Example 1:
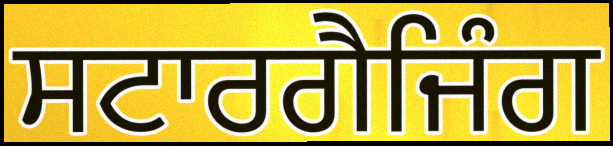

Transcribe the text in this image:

ਸਟਾਰਗੈਜਿੰਗ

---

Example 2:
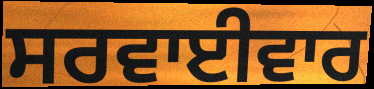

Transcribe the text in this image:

ਸਰਵਾਈਵਾਰ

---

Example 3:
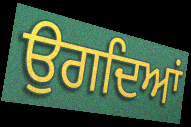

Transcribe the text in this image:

ਉਗਦਿਆਂ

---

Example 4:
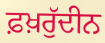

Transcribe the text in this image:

ਫ਼ਖ਼ਰੁੱਦੀਨ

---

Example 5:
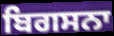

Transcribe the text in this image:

ਬਿਗਸਨਾ